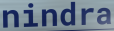
nindra